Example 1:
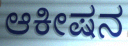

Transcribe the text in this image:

ಆಕೀಷನ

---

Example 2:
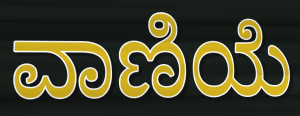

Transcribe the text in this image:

ವಾಣಿಯೆ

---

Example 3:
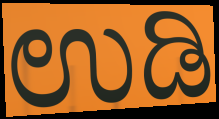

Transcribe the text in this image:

ಉಡಿ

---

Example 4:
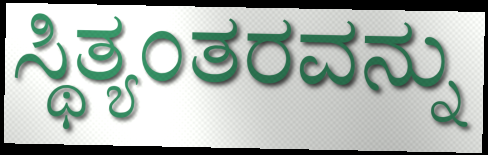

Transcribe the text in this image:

ಸ್ಥಿತ್ಯಂತರವನ್ನು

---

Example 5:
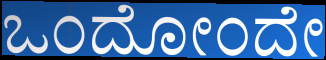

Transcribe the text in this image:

ಒಂದೋಂದೇ